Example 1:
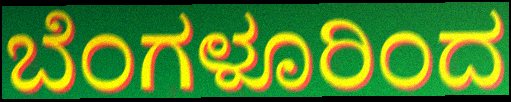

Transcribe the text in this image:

ಬೆಂಗಳೂರಿಂದ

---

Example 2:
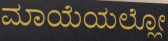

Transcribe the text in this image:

ಮಾಯೆಯಲ್ಲೋ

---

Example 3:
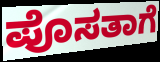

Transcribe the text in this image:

ಪೊಸತಾಗೆ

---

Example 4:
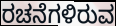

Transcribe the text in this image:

ರಚನೆಗಳಿರುವ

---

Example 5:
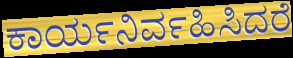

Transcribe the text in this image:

ಕಾರ್ಯನಿರ್ವಹಿಸಿದರೆ